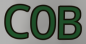
COB